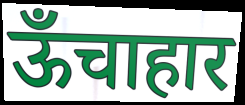
ऊँचाहार